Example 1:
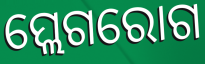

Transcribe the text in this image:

ପ୍ଲେଗରୋଗ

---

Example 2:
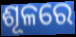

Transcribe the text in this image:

ଶୂଳରେ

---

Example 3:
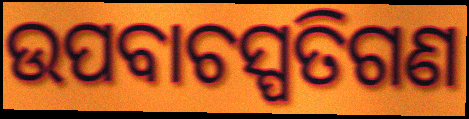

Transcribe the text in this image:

ଉପବାଚସ୍ପତିଗଣ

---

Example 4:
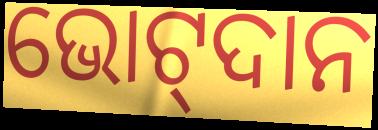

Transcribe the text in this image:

ଭୋଟ୍‌ଦାନ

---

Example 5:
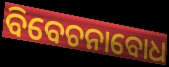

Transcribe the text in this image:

ବିବେଚନାବୋଧ